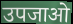
उपजाओ